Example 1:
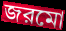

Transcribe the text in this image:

জরমো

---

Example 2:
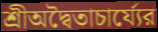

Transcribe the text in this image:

শ্রীঅদ্বৈতাচার্য্যের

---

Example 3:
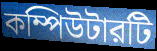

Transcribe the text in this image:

কম্পিউটারটি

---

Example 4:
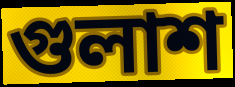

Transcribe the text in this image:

গুলাশ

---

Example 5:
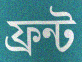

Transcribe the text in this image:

ফ্রন্ট